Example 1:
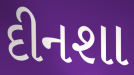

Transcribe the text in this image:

દીનશા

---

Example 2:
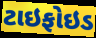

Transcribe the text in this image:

ટાઇફોઇડ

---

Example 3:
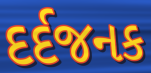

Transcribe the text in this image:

દર્દજનક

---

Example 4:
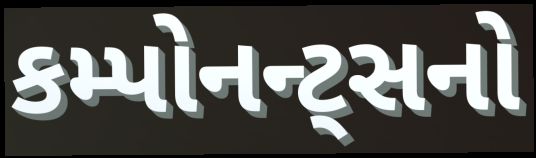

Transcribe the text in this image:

કમ્પોનન્ટ્સનો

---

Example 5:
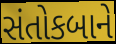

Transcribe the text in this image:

સંતોકબાને